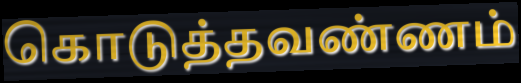
கொடுத்தவண்ணம்